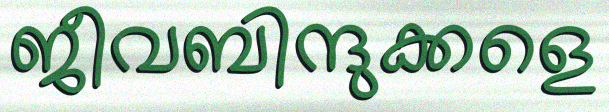
ജീവബിന്ദുക്കളെ